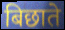
बिछाते